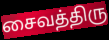
சைவத்திரு